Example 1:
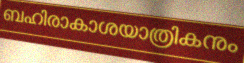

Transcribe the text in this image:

ബഹിരാകാശയാത്രികനും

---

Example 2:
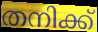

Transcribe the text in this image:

തനിക്ക്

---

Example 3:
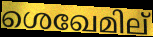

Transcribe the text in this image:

ശെഖേമില്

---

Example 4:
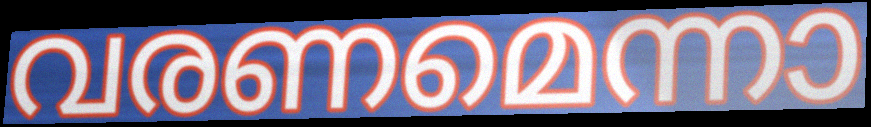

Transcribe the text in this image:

വരണമെന്നാ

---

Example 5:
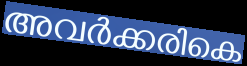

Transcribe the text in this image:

അവർക്കരികെ